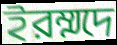
ইরম্মদে